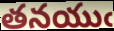
తనయుఁ